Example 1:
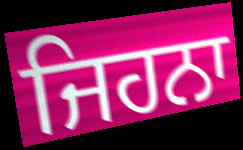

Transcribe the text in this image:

ਜਿਹਨਾ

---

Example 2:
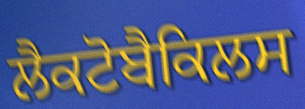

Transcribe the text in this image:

ਲੈਕਟੋਬੈਕਿਲਸ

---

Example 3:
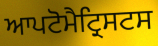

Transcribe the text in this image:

ਆਪਟੋਮੈਟ੍ਰਿਸਟਸ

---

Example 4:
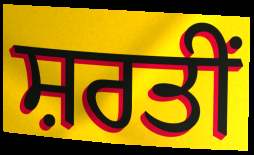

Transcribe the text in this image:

ਸ਼ਰਤੀਂ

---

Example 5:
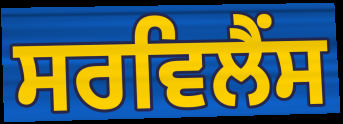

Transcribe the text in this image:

ਸਰਵਿਲੈਂਸ